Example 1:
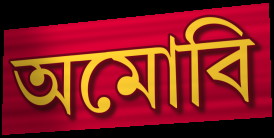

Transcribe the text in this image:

অমোবি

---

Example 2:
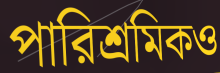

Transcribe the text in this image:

পারিশ্রমিকও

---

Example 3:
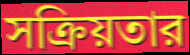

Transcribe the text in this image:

সক্রিয়তার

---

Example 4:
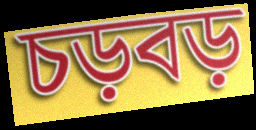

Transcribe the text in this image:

চড়বড়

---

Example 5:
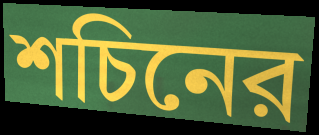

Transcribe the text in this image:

শচিনের